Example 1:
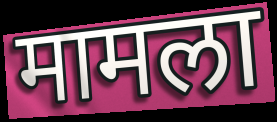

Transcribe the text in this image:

मामला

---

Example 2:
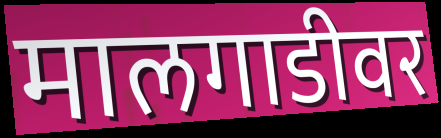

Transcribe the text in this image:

मालगाडीवर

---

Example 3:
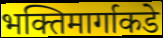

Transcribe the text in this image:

भक्तिमार्गाकडे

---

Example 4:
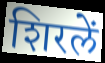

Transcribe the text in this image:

शिरलें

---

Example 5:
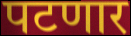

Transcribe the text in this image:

पटणार